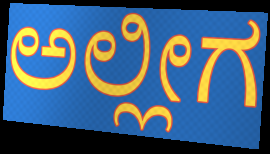
ಅಲ್ಲೀಗ